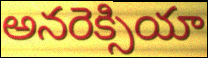
అనరెక్సియా